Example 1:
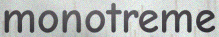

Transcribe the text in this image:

monotreme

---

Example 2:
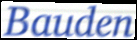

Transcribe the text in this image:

Bauden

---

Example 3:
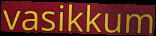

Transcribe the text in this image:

vasikkum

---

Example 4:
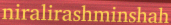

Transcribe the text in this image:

niralirashminshah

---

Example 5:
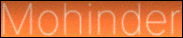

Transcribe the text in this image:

Mohinder